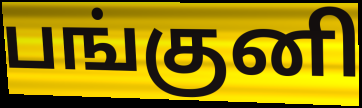
பங்குனி